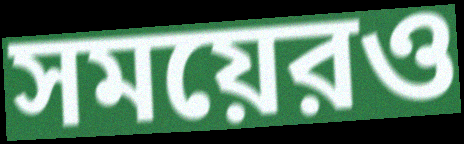
সময়েরও